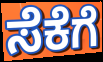
ಸೆಕೆಗೆ